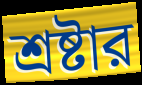
শ্রষ্টার